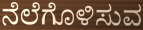
ನೆಲೆಗೊಳಿಸುವ